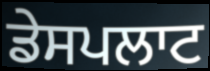
ਡੇਸਪਲਾਟ